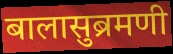
बालासुब्रमणी